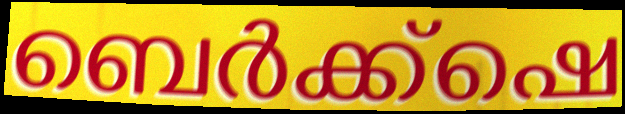
ബെർക്ക്ഷെ